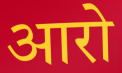
आरो